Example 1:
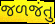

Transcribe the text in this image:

જળજંતુ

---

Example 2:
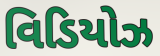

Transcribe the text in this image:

વિડિયોઝ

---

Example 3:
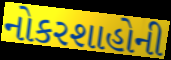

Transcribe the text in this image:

નોકરશાહોની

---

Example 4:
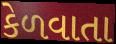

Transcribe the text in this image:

કેળવાતા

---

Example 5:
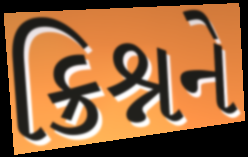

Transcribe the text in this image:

ક્રિશ્નને